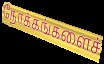
நோக்கங்களைச்